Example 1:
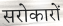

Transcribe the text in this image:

सरोकारों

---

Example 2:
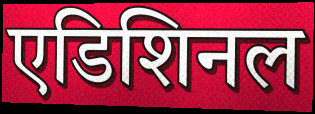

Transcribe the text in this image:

एडिशिनल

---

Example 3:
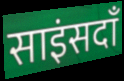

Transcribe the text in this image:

साइंसदाँ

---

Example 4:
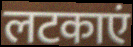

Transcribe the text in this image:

लटकाएं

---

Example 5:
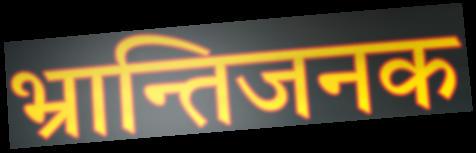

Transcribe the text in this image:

भ्रान्तिजनक